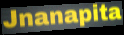
Jnanapita